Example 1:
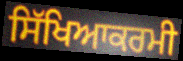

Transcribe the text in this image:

ਸਿੱਖਿਆਕਰਮੀ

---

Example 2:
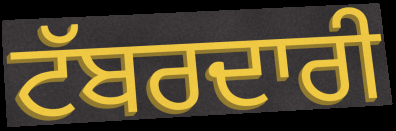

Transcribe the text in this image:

ਟੱਬਰਦਾਰੀ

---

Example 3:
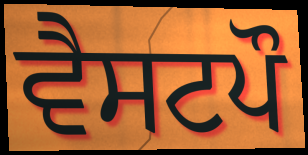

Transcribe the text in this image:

ਵੈਸਟਪੌ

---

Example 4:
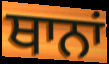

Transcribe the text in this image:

ਥਾਨਾਂ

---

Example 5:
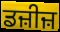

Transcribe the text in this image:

ਡਜ਼ੀਜ਼